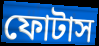
ফোটাস